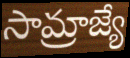
సామ్రాజ్యే